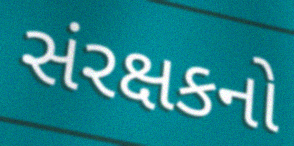
સંરક્ષકનો